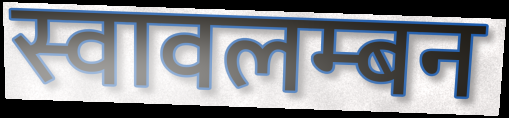
स्वावलम्बन